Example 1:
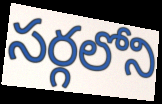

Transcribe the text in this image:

సర్గలోని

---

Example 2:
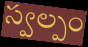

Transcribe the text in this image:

స్వల్పం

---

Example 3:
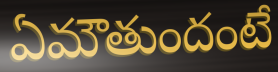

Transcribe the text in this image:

ఏమౌతుందంటే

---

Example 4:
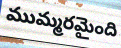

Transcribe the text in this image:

ముమ్మరమైంది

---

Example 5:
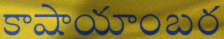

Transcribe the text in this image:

కాషాయాంబర